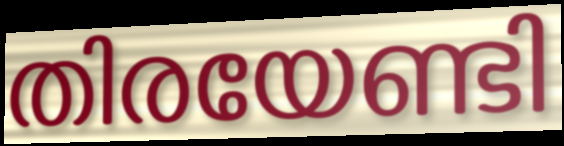
തിരയേണ്ടി